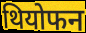
थियोफन